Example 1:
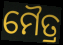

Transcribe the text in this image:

ମୈତ୍ର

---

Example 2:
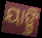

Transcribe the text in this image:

ୟାଙ୍ଗ୍ରି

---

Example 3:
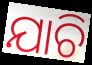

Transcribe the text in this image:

ଯାଚି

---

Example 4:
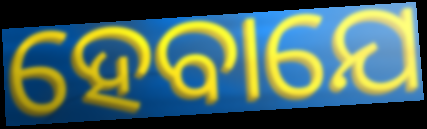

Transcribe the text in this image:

ହେବାଯେ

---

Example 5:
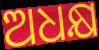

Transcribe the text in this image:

ଅଧକ୍ଷ